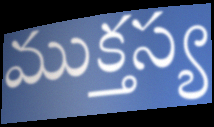
ముక్తస్య